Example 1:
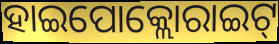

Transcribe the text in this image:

ହାଇପୋକ୍ଲୋରାଇଟ୍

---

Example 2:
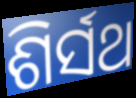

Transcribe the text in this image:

ଶିର୍ସଥ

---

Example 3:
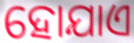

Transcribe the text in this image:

ହୋଯାଏ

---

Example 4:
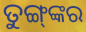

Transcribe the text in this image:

ତୁଙ୍ଗ୍‍ଙ୍କର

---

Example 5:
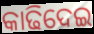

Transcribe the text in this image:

କାଢିଦେଇ